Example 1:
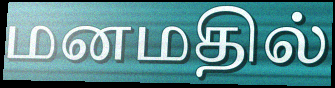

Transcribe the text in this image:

மனமதில்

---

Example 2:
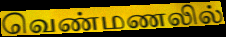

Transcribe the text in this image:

வெண்மணலில்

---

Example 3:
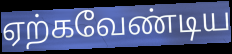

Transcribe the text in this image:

ஏற்கவேண்டிய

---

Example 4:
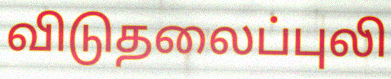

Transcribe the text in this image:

விடுதலைப்புலி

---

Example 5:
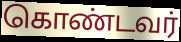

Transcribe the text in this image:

கொண்டவர்